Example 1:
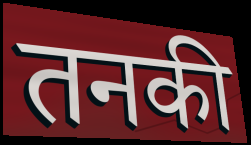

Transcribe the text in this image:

तनकी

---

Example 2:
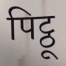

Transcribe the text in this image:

पिट्ठू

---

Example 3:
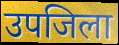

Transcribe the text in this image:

उपजिला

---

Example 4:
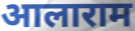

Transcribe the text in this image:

आलाराम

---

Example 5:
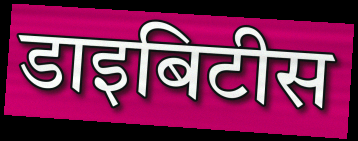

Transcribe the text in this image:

डाइबिटीस